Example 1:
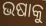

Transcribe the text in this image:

ଭଷାକୁ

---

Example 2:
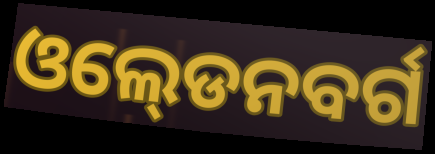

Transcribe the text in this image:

ଓଲ୍‍ଡେନବର୍ଗ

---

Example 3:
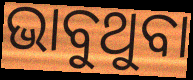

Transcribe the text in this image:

ଭାବୁଥୁବା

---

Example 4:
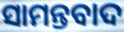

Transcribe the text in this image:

ସାମନ୍ତବାଦ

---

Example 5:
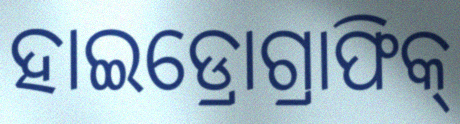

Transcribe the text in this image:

ହାଇଡ୍ରୋଗ୍ରାଫିକ୍